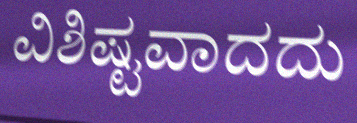
ವಿಶಿಷ್ಟವಾದದು